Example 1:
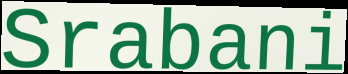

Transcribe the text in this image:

Srabani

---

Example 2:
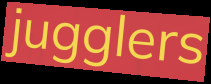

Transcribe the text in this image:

jugglers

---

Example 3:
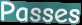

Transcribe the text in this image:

Passes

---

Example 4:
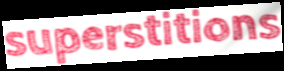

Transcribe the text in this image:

superstitions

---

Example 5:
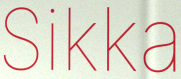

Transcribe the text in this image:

Sikka